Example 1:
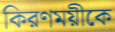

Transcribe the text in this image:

কিরণময়ীকে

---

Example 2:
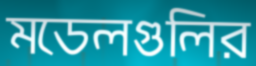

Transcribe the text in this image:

মডেলগুলির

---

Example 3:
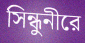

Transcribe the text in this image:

সিন্ধুনীরে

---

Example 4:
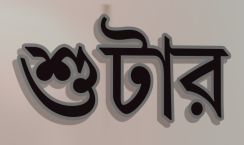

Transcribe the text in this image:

শুটার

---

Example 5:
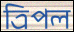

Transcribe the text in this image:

ত্রিপল